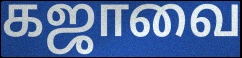
கஜாவை